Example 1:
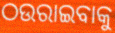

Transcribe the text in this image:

ଠଉରାଇବାକୁ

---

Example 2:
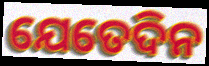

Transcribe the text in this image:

ଯେତେଦିନ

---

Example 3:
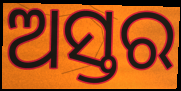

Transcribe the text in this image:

ଅସ୍ତର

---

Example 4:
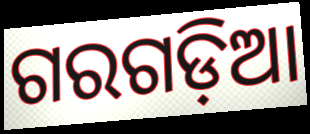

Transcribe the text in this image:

ଗରଗଡ଼ିଆ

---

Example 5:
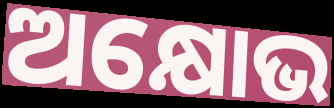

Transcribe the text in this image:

ଅକ୍ଷୋଭ